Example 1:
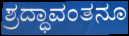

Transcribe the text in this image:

ಶ್ರದ್ಧಾವಂತನೂ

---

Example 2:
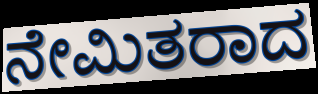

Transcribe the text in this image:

ನೇಮಿತರಾದ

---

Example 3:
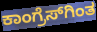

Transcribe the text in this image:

ಕಾಂಗ್ರೆಸ್‌ಗಿಂತ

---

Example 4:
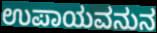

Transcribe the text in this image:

ಉಪಾಯವನುನ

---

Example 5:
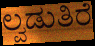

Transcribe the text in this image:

ಲ್ವಡುತಿರೆ